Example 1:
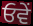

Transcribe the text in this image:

ਓਵੇਂ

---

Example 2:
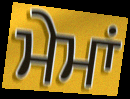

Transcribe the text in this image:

ਮੇਮਾਂ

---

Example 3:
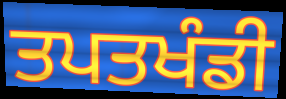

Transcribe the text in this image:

ਤਪਤਖੰਡੀ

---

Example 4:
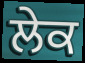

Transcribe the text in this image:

ਲੇਕ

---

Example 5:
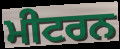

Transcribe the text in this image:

ਮੀਟਰਨ